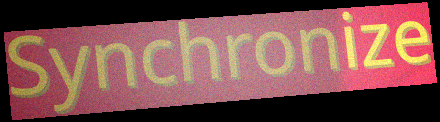
Synchronize